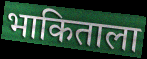
भाकिताला